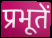
प्रभूतें